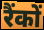
रैंकों